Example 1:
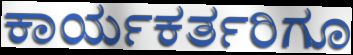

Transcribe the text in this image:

ಕಾರ್ಯಕರ್ತರಿಗೂ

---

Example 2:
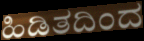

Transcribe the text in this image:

ಹಿಡಿತದಿಂದ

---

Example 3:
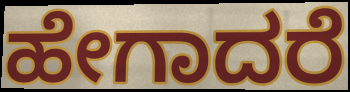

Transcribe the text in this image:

ಹೇಗಾದರೆ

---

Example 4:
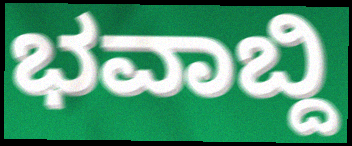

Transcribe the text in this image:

ಭವಾಬ್ದಿ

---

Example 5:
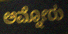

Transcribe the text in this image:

ಅಮ್ನೋರು